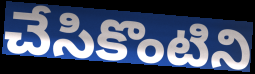
చేసికొంటిని